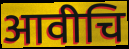
आवीचि